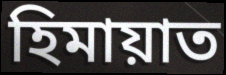
হিমায়াত